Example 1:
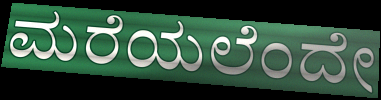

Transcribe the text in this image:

ಮರೆಯಲೆಂದೇ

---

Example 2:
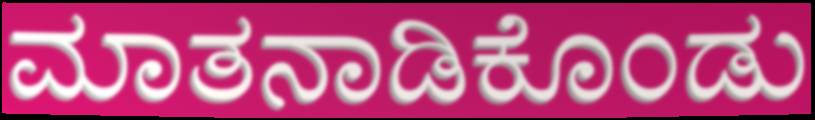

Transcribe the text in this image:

ಮಾತನಾಡಿಕೊಂಡು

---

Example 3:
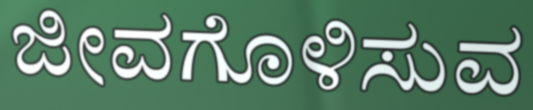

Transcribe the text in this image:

ಜೀವಗೊಳಿಸುವ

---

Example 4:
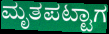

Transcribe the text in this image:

ಮೃತಪಟ್ಟಾಗ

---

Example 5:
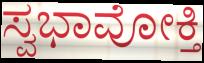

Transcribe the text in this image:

ಸ್ವಭಾವೋಕ್ತಿ